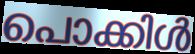
പൊക്കിൾ